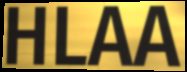
HLAA